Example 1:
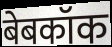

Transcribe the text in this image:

बेबकॉक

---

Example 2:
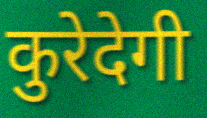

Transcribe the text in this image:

कुरेदेगी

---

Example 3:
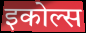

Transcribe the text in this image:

इकोल्स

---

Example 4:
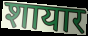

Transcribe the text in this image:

शायार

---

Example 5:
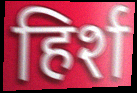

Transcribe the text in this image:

हिर्श